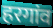
हरगांव